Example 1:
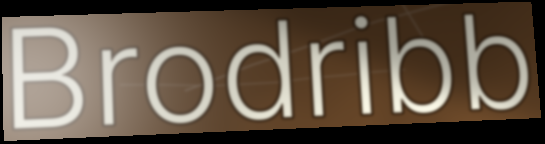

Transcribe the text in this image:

Brodribb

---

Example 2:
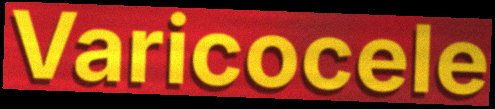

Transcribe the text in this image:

Varicocele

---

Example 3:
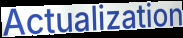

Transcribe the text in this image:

Actualization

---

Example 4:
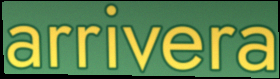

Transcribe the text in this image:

arrivera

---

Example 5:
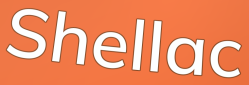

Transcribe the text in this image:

Shellac